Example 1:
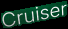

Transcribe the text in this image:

Cruiser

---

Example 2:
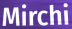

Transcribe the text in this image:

Mirchi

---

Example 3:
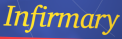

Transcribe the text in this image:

Infirmary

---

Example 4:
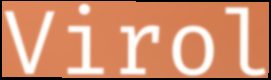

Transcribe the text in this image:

Virol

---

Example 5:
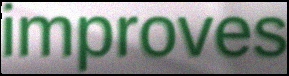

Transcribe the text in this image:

improves